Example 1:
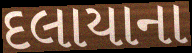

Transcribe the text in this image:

દલાયાના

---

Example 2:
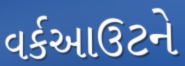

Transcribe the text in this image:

વર્કઆઉટને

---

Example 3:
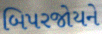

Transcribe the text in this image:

બિપરજોયને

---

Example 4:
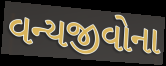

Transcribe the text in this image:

વન્યજીવોના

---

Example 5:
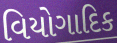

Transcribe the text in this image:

વિયોગાદિક